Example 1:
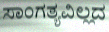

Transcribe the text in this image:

ಸಾಂಗತ್ಯವಿಲ್ಲದ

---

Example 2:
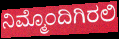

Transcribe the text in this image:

ನಿಮ್ಮೊಂದಿಗಿರಲಿ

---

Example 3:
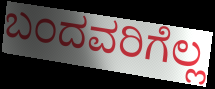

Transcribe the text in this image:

ಬಂದವರಿಗೆಲ್ಲ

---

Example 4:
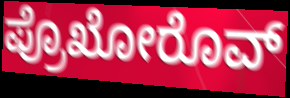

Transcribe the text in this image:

ಪ್ರೊಖೋರೊವ್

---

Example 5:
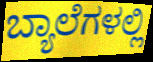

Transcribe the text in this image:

ಬ್ಯಾಲೆಗಳಲ್ಲಿ